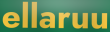
ellaruu